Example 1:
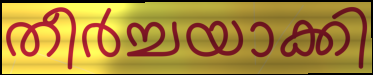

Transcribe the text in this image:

തീർച്ചയാക്കി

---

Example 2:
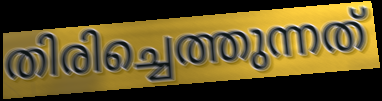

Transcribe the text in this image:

തിരിച്ചെത്തുന്നത്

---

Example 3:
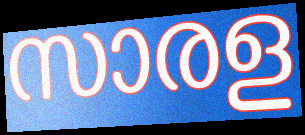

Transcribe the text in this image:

സാരള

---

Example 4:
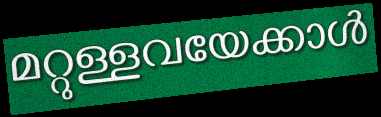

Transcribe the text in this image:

മറ്റുള്ളവയേക്കാൾ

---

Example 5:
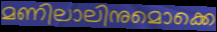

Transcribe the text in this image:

മണിലാലിനുമൊക്കെ